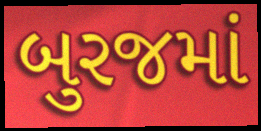
બુરજમાં